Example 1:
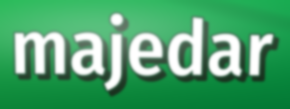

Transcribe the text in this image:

majedar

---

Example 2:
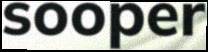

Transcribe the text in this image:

sooper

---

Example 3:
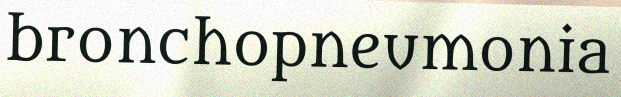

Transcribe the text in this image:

bronchopneumonia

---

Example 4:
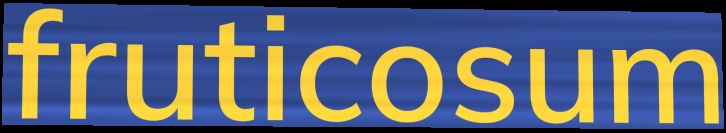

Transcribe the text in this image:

fruticosum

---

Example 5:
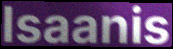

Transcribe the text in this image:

Isaanis